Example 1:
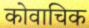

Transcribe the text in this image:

कोवाचिक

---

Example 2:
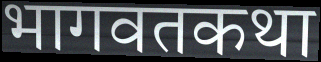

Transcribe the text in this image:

भागवतकथा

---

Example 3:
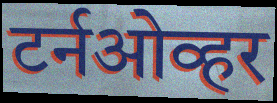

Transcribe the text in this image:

टर्नओव्हर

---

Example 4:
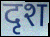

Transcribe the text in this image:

दृश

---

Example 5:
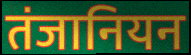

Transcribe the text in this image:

तंजानियन